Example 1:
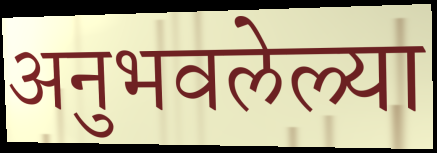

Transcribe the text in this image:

अनुभवलेल्या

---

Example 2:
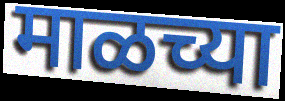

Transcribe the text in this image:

माळच्या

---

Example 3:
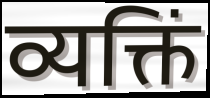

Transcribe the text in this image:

व्यक्तिं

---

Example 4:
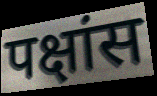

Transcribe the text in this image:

पक्षांस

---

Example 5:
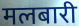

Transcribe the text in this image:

मलबारी